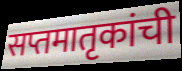
सप्तमातृकांची